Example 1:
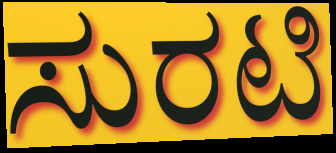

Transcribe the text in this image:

ಸುರಟಿ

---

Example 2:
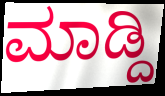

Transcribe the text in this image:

ಮಾಡ್ದಿ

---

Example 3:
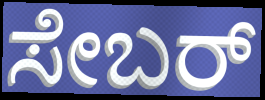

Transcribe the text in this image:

ಸೇಬರ್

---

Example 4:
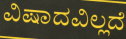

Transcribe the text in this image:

ವಿಷಾದವಿಲ್ಲದೆ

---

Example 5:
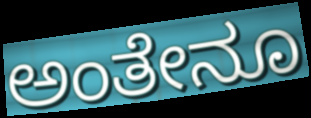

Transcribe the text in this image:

ಅಂತೇನೂ